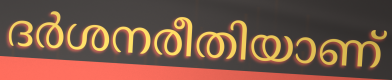
ദർശനരീതിയാണ്